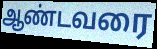
ஆண்டவரை